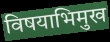
विषयाभिमुख